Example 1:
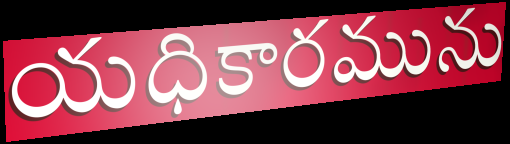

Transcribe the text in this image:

యధికారమును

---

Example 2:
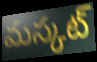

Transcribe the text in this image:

మస్కట్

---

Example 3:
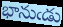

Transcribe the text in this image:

భానుఁడు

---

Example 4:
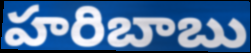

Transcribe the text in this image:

హరిబాబు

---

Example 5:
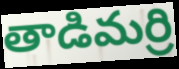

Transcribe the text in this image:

తాడిమర్రి